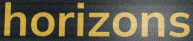
horizons